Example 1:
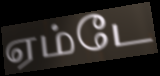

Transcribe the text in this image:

ஏம்டே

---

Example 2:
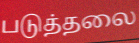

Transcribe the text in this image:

படுத்தலை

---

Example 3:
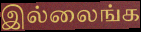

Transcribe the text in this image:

இல்லைங்க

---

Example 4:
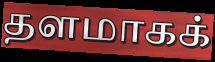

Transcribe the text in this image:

தளமாகக்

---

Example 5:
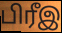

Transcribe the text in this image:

பிரீஇ